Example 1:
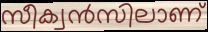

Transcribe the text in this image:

സീക്വൻസിലാണ്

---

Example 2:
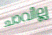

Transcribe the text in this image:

ചാവില്ല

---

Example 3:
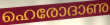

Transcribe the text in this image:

ഹെരോദാണു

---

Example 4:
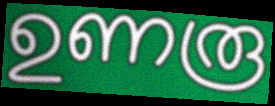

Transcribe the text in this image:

ഉണരൂ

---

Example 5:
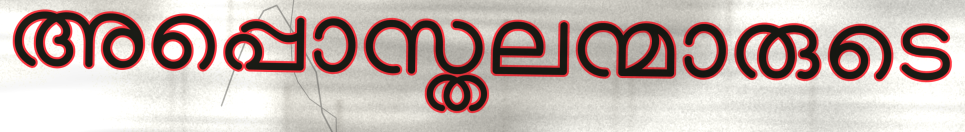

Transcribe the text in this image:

അപ്പൊസ്തലന്മാരുടെ